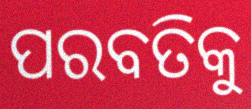
ପରବତିକୁ